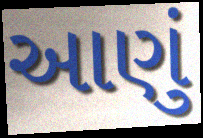
આણું